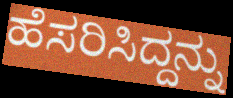
ಹೆಸರಿಸಿದ್ದನ್ನು